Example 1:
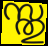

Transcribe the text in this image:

സ്തു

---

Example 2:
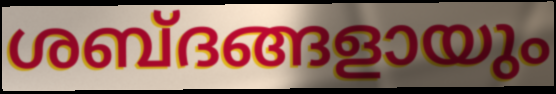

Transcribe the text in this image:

ശബ്ദങ്ങളായും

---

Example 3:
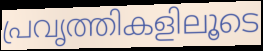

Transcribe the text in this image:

പ്രവൃത്തികളിലൂടെ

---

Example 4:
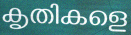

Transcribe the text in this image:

കൃതികളെ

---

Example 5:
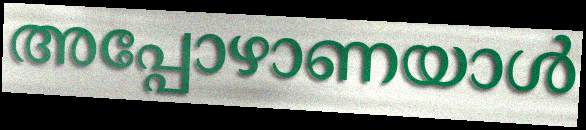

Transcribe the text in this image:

അപ്പോഴാണയാൾ